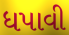
ધપાવી